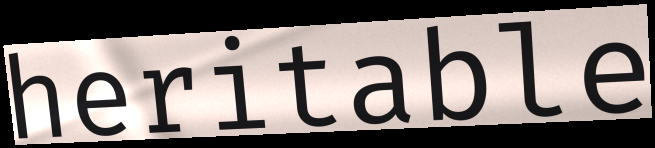
heritable